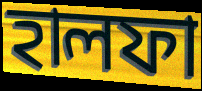
হালফা